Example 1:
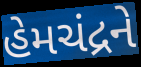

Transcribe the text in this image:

હેમચંદ્રને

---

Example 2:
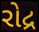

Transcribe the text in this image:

રોદ્ર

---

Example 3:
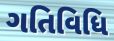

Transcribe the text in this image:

ગતિવિધિ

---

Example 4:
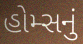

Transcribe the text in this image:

હોમ્સનું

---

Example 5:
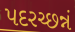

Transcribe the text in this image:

પદરચ્છન્નં